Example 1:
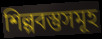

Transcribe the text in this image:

শিল্পবস্তুসমূহ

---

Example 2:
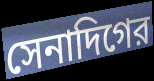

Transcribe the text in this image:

সেনাদিগের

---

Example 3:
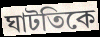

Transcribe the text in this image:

ঘাটতিকে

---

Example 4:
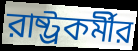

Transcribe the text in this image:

রাষ্ট্রকর্মীর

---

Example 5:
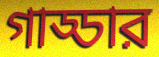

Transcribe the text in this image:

গাড্ডার